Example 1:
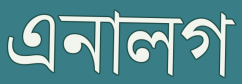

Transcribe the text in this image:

এনালগ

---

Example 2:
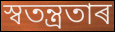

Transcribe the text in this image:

স্বতন্ত্ৰতাৰ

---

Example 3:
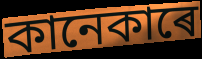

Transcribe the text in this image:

কানেকাৰে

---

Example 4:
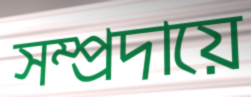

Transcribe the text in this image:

সম্প্ৰদায়ে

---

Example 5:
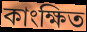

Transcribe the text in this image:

কাংক্ষিত